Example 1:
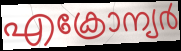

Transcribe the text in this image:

എക്രോന്യർ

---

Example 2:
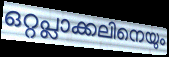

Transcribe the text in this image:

ഒറ്റപ്ലാക്കലിനെയും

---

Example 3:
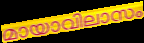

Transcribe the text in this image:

മായാവിലാസം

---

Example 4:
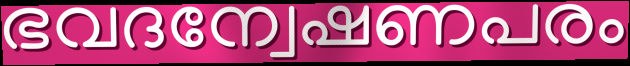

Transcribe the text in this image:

ഭവദന്വേഷണപരം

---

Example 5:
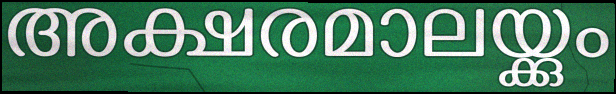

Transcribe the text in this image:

അക്ഷരമാലയ്ക്കും